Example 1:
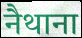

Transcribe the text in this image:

नैथाना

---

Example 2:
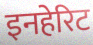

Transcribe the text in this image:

इनहेरिट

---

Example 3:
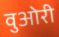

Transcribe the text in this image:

वुओरी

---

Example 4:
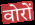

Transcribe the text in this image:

वोरों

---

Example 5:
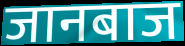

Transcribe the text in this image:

जानबाज